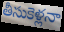
తీసుకెళ్లనా